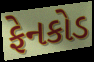
ફેનકોડ